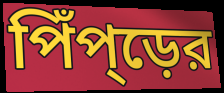
পিঁপ্ড়ের